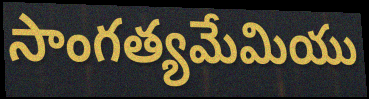
సాంగత్యమేమియు